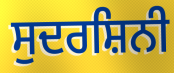
ਸੁਦਰਸ਼ਿਨੀ